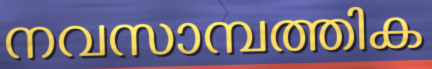
നവസാമ്പത്തിക